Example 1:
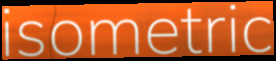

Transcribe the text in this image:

isometric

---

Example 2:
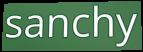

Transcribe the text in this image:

sanchy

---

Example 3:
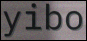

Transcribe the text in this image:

yibo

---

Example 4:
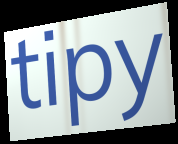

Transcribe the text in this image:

tipy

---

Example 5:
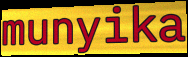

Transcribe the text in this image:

munyika